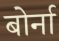
बोर्ना